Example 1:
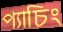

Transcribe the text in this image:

প্যাচিং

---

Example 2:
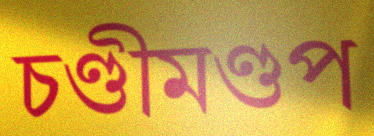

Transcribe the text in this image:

চণ্ডীমণ্ডপ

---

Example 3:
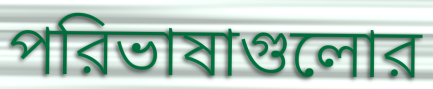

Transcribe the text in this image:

পরিভাষাগুলোর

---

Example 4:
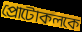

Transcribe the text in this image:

প্রোটোকলকে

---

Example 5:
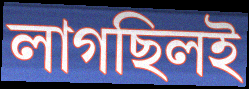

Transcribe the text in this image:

লাগছিলই